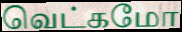
வெட்கமோ